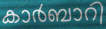
കാർബാറി